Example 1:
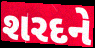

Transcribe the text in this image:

શરદને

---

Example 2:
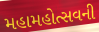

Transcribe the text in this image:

મહામહોત્સવની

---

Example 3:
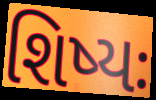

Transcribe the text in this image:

શિષ્યઃ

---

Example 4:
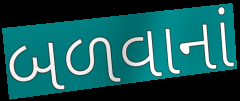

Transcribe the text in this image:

બળવાનાં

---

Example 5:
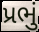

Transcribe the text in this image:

પ્રભું